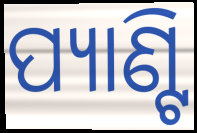
ପ୍ୟାଣ୍ଟି